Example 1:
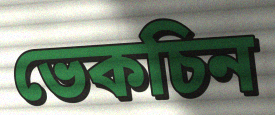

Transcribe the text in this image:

ভেকচিন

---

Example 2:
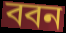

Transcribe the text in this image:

ববন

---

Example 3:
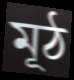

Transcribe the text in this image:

মূঠ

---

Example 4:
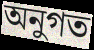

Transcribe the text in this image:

অনুগত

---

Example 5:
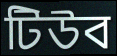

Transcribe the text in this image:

টিউব